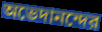
অভেদানন্দের